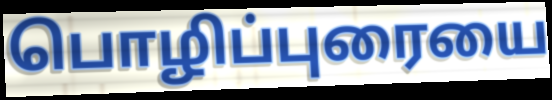
பொழிப்புரையை